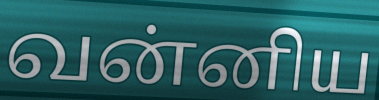
வன்னிய